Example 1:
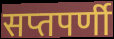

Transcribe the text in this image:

सप्तपर्णी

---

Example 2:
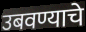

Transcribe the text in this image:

उबवण्याचे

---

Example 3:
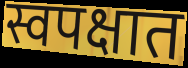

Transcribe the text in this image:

स्वपक्षात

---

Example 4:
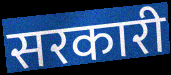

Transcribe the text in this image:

सरकारी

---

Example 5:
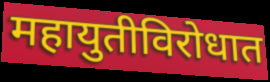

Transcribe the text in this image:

महायुतीविरोधात